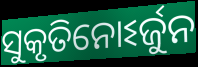
ସୁକୃତିନୋଽର୍ଜୁନ